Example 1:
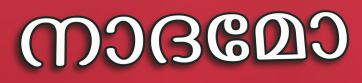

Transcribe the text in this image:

നാദമോ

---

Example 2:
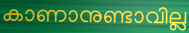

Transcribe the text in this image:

കാണാനുണ്ടാവില്ല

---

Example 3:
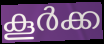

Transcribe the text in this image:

കൂർക്ക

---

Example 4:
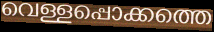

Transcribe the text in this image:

വെള്ളപ്പൊക്കത്തെ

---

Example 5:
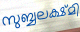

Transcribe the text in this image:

സുബ്ബലക്ഷ്മി